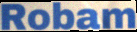
Robam